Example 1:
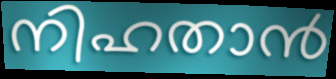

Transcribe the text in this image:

നിഹതാൻ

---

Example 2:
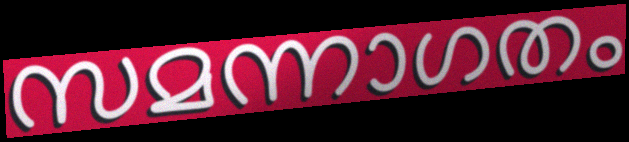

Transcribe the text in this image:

സമന്നാഗതം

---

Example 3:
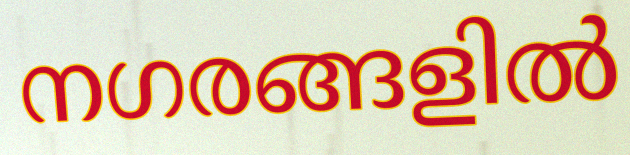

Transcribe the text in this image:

നഗരങ്ങളിൽ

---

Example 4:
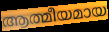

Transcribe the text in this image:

ആത്മീയമായ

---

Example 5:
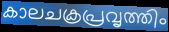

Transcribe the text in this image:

കാലചക്രപ്രവൃത്തിം